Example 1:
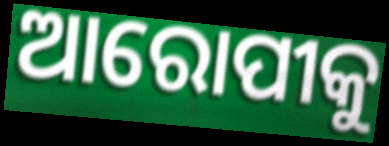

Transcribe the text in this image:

ଆରୋପୀକୁ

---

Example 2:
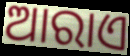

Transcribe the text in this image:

ଆରାଏ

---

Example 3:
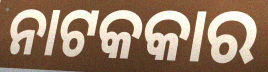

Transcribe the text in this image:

ନାଟକକାର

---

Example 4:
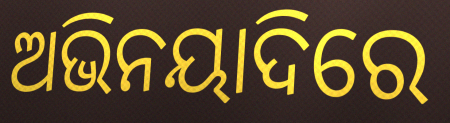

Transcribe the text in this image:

ଅଭିନୟାଦିରେ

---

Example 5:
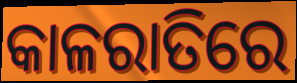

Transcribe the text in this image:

କାଳରାତିରେ